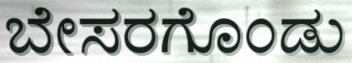
ಬೇಸರಗೊಂಡು